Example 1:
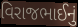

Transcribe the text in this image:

વિરાજભાઈનું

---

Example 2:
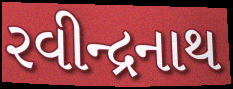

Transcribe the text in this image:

રવીન્દ્રનાથ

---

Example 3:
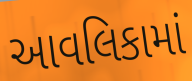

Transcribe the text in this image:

આવલિકામાં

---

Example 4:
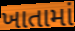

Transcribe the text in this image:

ખાતામાં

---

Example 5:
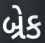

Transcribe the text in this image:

બ્રેક